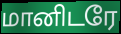
மானிடரே